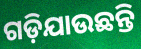
ଗଡ଼ିଯାଉଛନ୍ତି